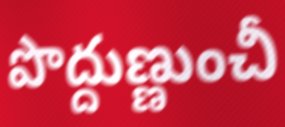
పొద్దుణ్ణుంచీ